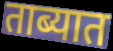
ताब्यात